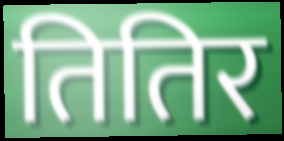
तितिर